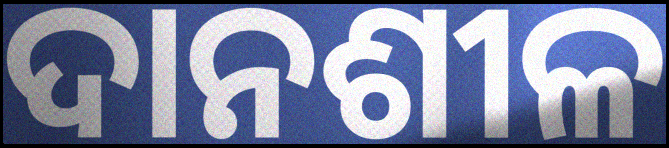
ଦାନଶୀଳ